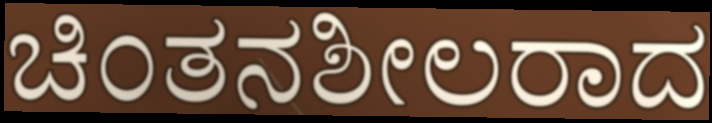
ಚಿಂತನಶೀಲರಾದ